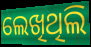
ଲେଖିଥିଲି